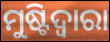
ମୁଷ୍ଟିଦ୍ୱାରା